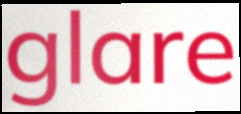
glare